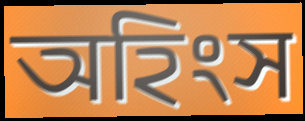
অহিংস